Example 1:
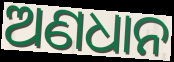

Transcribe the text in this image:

ଅଣଧାନ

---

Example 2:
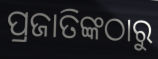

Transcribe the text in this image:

ପ୍ରଜାତିଙ୍କଠାରୁ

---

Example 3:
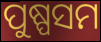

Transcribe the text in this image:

ପୁଷ୍ପସମ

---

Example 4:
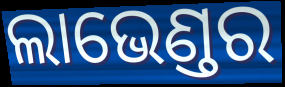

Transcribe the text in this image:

ଲାଭେଣ୍ଡର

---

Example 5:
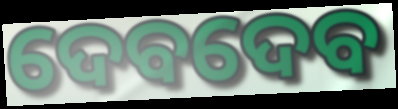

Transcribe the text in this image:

ଦେବଦେବ